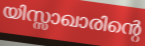
യിസ്സാഖാരിന്റെ